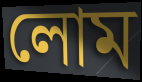
লোম